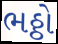
ભઠ્ઠો